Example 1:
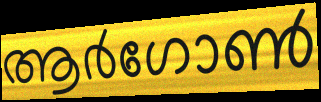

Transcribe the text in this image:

ആർഗോൺ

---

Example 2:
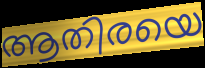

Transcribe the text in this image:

ആതിരയെ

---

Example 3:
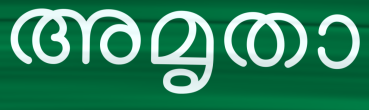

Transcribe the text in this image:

അമൃതാ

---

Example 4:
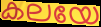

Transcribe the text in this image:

കലയേ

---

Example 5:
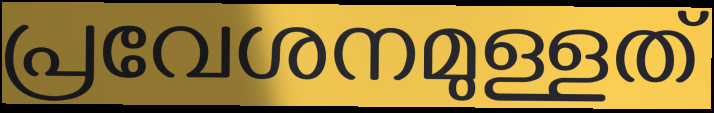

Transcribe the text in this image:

പ്രവേശനമുള്ളത്